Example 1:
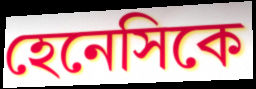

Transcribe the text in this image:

হেনেসিকে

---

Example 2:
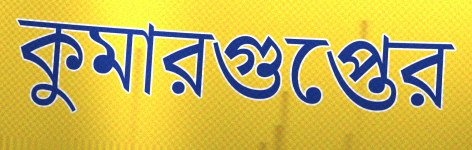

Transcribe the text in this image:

কুমারগুপ্তের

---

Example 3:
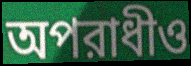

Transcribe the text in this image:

অপরাধীও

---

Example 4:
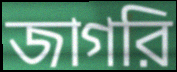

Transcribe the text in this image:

জাগরি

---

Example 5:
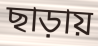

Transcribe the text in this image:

ছাড়ায়